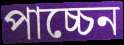
পাচ্চেন